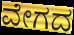
ವೇಗದ